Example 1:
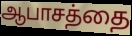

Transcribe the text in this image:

ஆபாசத்தை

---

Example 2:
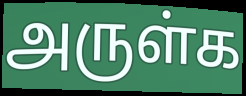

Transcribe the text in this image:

அருள்க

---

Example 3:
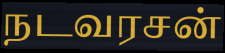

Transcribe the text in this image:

நடவரசன்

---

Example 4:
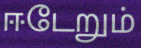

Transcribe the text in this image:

ஈடேறும்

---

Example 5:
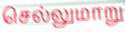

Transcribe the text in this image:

செல்லுமாறு